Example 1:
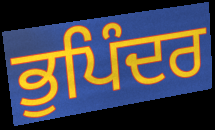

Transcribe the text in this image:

ਭੁਪਿੰਦਰ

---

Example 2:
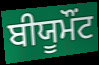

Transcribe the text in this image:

ਬੀਯੂਮੌਂਟ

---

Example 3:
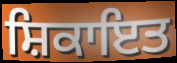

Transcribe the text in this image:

ਸ਼ਿਕਾਇਤ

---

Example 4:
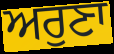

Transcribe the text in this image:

ਅਰੁਣਾ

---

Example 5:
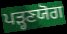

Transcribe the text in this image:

ਪੜ੍ਹਣਯੋਗ